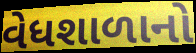
વેધશાળાનો